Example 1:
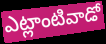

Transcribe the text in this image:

ఎట్లాంటివాడో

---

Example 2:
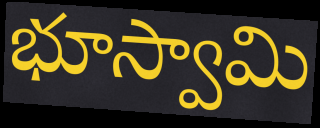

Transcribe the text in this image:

భూస్వామి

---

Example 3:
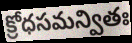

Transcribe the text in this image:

క్రోధసమన్వితః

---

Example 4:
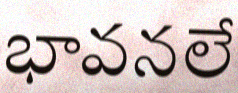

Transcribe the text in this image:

భావనలే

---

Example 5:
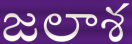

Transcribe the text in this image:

జలాశ